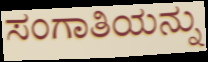
ಸಂಗಾತಿಯನ್ನು